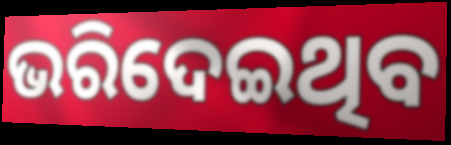
ଭରିଦେଇଥିବ